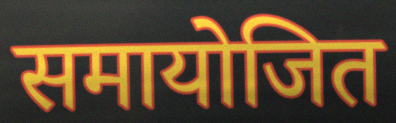
समायोजित